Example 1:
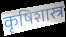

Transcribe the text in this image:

कृषिशास्त्र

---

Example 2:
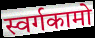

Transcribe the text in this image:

स्वर्गकामो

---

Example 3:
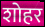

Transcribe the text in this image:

शोहर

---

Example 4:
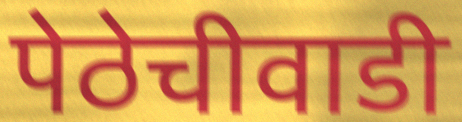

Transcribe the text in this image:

पेठेचीवाडी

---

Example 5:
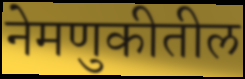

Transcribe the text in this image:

नेमणुकीतील